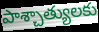
పాశ్చాత్యులకు